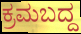
ಕ್ರಮಬದ್ದ